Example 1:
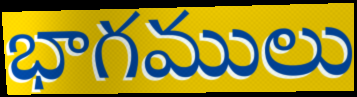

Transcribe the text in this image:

భాగములు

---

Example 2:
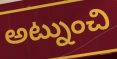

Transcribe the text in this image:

అట్నుంచి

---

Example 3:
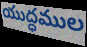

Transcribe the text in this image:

యుద్ధముల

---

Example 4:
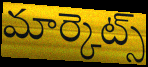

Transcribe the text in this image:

మార్కెట్స్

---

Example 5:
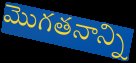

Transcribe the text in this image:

మొగతనాన్ని